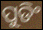
ପୁଡିଂ